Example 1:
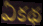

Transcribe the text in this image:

ఏకథ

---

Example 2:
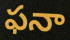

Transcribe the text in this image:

ఫనా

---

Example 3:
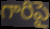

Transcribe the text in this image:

గారిపై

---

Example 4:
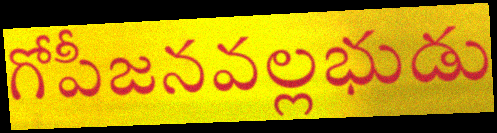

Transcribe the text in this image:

గోపీజనవల్లభుడు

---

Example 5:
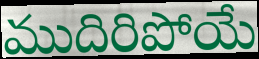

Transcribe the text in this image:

ముదిరిపోయే